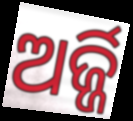
ଅର୍ଜ୍ଜି